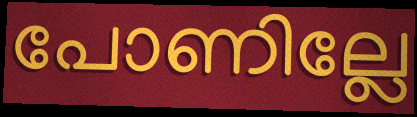
പോണില്ലേ